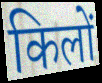
किलों